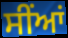
ਸੀਂਆਂ